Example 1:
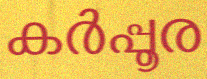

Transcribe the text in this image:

കർപ്പൂര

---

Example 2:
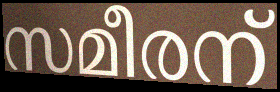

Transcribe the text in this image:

സമീരന്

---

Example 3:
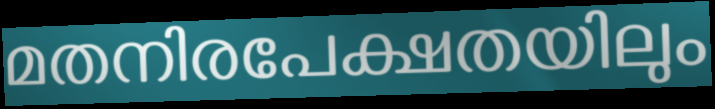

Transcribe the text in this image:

മതനിരപേക്ഷതയിലും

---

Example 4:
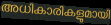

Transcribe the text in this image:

അധികാരികളുമായി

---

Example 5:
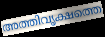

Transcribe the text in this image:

അത്തിവൃക്ഷത്തെ